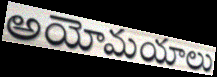
అయోమయాలు